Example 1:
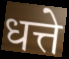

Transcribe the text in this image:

धत्ते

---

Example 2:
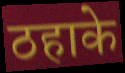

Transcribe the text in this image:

ठहाके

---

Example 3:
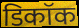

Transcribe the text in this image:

डिकॉक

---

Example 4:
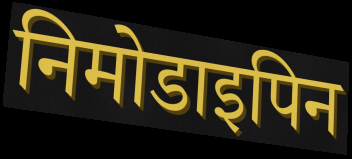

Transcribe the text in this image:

निमोडाइपिन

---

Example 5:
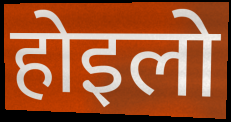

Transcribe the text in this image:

होइलो